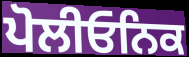
ਪੋਲੀਓਨਿਕ